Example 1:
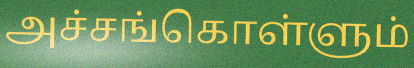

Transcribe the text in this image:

அச்சங்கொள்ளும்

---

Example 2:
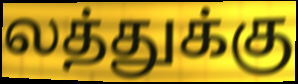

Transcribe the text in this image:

லத்துக்கு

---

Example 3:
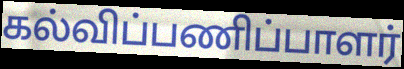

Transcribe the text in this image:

கல்விப்பணிப்பாளர்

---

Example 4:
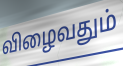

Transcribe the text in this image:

விழைவதும்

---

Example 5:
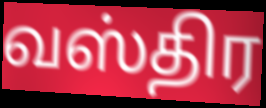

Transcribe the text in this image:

வஸ்திர